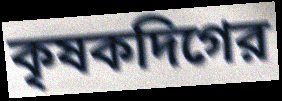
কৃষকদিগের